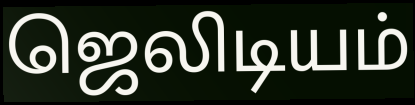
ஜெலிடியம்